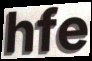
hfe